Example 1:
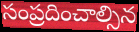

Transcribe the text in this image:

సంప్రదించాల్సిన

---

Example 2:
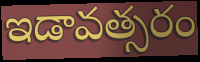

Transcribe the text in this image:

ఇడావత్సరం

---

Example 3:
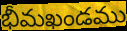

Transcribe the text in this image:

భీమఖండము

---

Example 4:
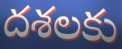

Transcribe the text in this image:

దశలకు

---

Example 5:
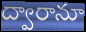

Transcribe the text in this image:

ద్వారానూ